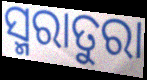
ସ୍ମରାତୁରା